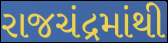
રાજચંદ્રમાંથી